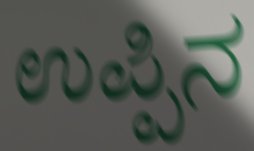
ಉಪ್ಪಿನ